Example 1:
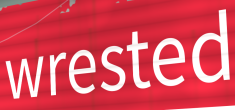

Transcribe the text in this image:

wrested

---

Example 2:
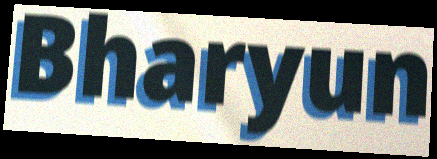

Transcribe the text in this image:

Bharyun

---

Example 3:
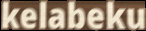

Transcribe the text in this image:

kelabeku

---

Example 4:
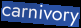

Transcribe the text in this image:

carnivory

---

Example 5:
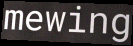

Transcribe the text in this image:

mewing